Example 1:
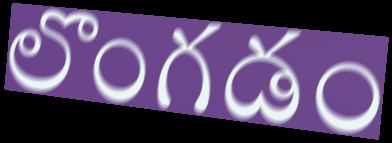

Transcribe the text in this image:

లొంగడం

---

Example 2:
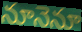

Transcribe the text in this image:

నూనెనూ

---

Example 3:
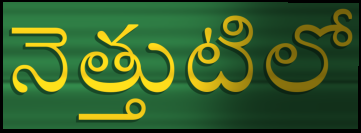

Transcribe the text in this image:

నెత్తుటిలో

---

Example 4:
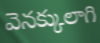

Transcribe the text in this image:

వెనక్కులాగి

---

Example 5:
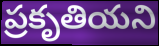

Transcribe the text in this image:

ప్రకృతియని